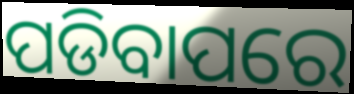
ପଡିବାପରେ